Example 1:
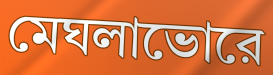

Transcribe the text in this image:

মেঘলাভোরে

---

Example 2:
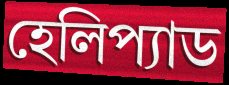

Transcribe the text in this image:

হেলিপ্যাড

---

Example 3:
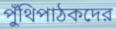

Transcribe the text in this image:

পুঁথিপাঠকদের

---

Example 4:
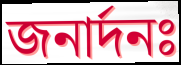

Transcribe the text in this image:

জনার্দনঃ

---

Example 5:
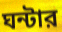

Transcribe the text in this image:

ঘন্টার